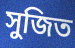
সুজিত